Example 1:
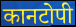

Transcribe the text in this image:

कानटोपी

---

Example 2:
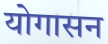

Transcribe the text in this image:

योगासन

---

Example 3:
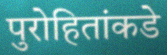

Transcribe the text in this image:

पुरोहितांकडे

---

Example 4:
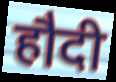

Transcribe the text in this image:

हौदी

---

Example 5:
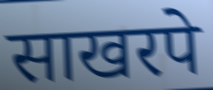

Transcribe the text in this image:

साखरपे